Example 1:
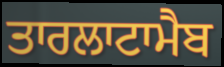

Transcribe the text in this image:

ਤਾਰਲਾਟਾਮੈਬ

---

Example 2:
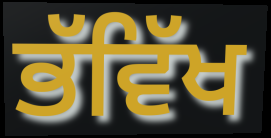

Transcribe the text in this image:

ਭੱਵਿੱਖ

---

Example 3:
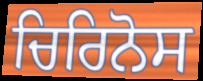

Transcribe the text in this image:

ਚਿਰਿਨੋਸ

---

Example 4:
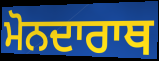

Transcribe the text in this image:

ਮੋਨਦਾਰਾਥ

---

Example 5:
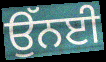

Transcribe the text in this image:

ਉੱਨਈ